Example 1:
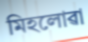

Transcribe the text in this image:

মিহলোৱা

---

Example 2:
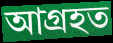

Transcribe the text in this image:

আগ্ৰহত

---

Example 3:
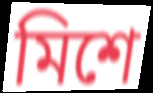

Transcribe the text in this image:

মিশে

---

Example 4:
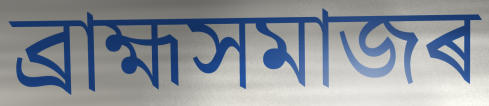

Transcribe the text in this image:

ব্ৰাহ্মসমাজৰ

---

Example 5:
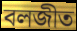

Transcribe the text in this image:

বলজীত